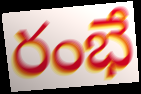
రంభే